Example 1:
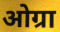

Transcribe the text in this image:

ओग्रा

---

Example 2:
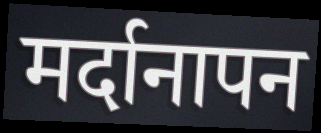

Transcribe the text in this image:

मर्दानापन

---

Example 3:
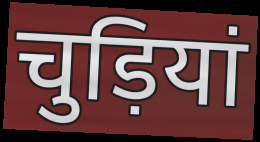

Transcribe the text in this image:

चुड़ियां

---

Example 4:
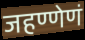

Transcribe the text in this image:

जहण्णेणं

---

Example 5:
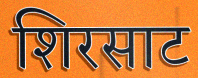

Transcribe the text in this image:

शिरसाट